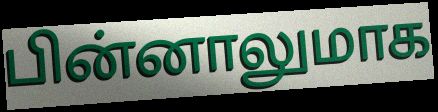
பின்னாலுமாக